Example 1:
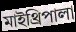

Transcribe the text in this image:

মাইথ্রিপালা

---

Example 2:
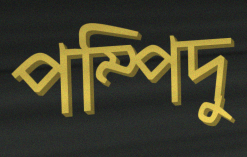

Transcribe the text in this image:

পম্পিদু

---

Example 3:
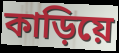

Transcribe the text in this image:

কাড়িয়ে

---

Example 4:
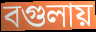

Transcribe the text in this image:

বগুলায়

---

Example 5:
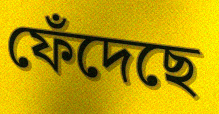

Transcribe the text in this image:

ফেঁদেছে